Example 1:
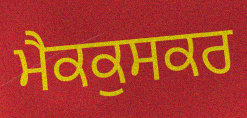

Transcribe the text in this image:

ਮੈਕਕੁਸਕਰ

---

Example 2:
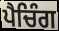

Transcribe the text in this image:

ਪੈਚਿੰਗ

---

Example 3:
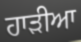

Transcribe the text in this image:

ਹਾੜੀਆ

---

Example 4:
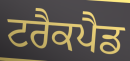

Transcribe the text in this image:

ਟਰੈਕਪੈਡ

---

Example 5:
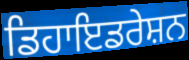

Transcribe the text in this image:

ਡਿਹਾਇਡਰੇਸ਼ਨ